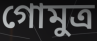
গোমুত্ৰ